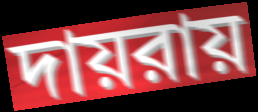
দায়রায়